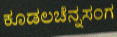
ಕೂಡಲಚೆನ್ನಸಂಗ